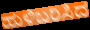
ಹುಳಿಬರಿಸಿದ